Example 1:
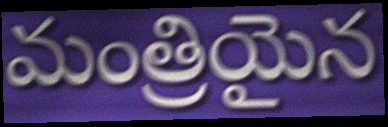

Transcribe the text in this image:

మంత్రియైన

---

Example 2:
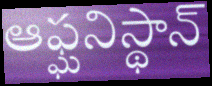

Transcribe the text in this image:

ఆఫ్ఘనిస్థాన్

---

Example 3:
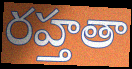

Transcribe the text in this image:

రహ్తతా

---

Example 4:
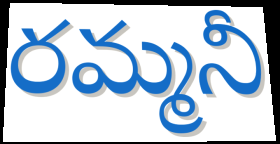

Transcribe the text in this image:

రమ్మనీ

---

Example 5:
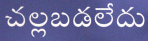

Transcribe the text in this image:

చల్లబడలేదు